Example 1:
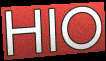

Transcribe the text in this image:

HIO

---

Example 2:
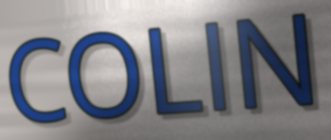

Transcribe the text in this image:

COLIN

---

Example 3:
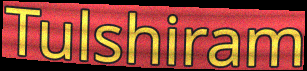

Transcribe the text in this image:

Tulshiram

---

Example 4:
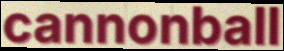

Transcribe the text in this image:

cannonball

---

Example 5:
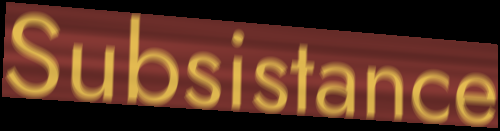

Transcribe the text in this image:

Subsistance